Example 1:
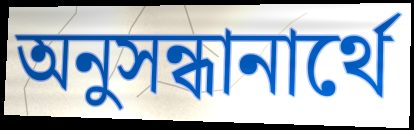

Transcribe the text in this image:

অনুসন্ধানার্থে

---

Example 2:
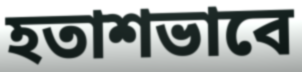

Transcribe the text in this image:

হতাশভাবে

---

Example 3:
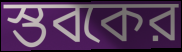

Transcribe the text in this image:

স্তবকের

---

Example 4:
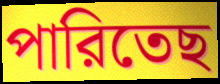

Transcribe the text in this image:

পারিতেছ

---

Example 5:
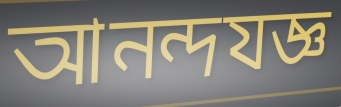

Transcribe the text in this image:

আনন্দযজ্ঞ